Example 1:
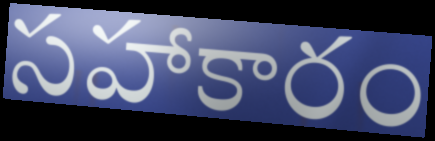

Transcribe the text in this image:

సహాకారం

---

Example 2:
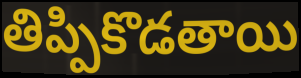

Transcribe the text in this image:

తిప్పికొడతాయి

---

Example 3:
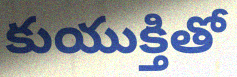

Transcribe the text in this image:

కుయుక్తితో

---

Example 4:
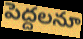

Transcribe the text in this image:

పెద్దలనూ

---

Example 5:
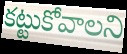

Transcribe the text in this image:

కట్టుకోవాలని